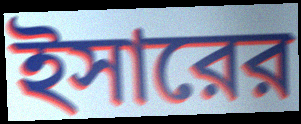
ইসারের